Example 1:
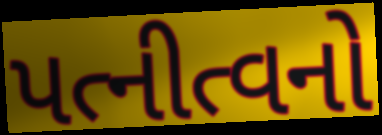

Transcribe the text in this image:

પત્નીત્વનો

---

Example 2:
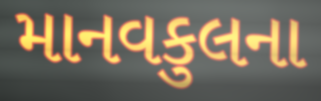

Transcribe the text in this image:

માનવકુલના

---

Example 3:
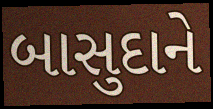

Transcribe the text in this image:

બાસુદાને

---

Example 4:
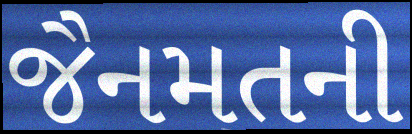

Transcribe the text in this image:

જૈનમતની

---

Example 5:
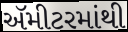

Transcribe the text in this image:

ઍમીટરમાંથી